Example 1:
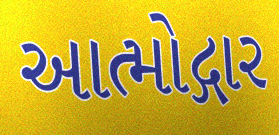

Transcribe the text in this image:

આત્મોદ્ગાર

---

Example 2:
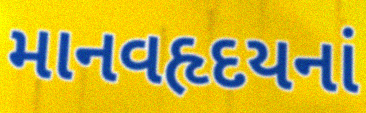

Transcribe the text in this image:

માનવહૃદયનાં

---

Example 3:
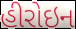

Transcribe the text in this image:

હીરોઇન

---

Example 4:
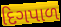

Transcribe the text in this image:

દિગપાળ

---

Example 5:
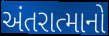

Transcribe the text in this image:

અંતરાત્માનો